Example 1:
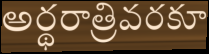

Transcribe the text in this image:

అర్థరాత్రివరకూ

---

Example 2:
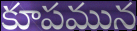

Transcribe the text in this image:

కూపమున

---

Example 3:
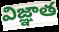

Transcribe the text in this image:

విజ్ఞాత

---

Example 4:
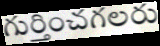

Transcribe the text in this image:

గుర్తించగలరు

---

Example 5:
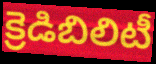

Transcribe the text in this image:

క్రెడిబిలిటీ